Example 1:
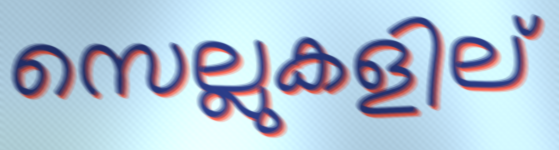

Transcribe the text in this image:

സെല്ലുകളില്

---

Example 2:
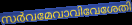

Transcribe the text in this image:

സർവമേവാവിവേശേതി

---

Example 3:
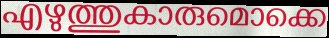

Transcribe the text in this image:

എഴുത്തുകാരുമൊക്കെ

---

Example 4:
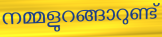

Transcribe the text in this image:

നമ്മളുറങ്ങാറുണ്ട്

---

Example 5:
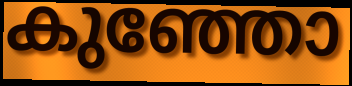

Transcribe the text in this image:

കുഞ്ഞോ